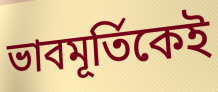
ভাবমূর্তিকেই